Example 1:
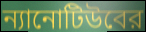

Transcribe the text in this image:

ন্যানোটিউবের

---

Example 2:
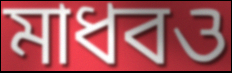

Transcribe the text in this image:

মাধবও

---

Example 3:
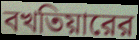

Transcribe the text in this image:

বখতিয়ারের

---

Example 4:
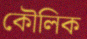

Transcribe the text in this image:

কৌলিক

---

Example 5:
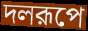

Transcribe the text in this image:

দলরূপে